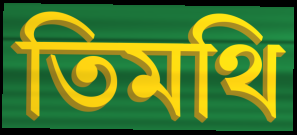
তিমথি